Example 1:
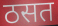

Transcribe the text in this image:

ठसत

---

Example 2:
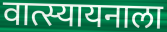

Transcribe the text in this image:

वात्स्यायनाला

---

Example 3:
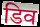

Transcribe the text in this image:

डिव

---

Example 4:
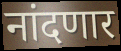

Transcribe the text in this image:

नांदणार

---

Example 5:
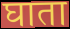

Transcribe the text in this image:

घाता